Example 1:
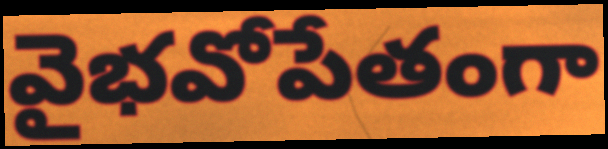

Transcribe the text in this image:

వైభవోపేతంగా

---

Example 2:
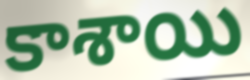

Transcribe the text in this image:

కాశాయి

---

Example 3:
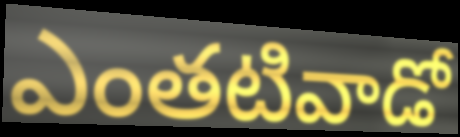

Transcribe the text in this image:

ఎంతటివాడో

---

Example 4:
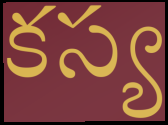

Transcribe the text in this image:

కస్య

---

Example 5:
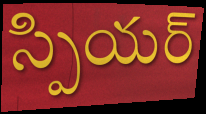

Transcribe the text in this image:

స్పియర్